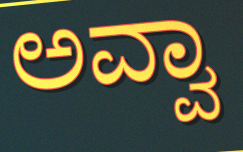
ಅವ್ವಾ